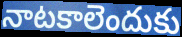
నాటకాలెందుకు